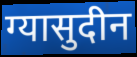
ग्यासुदीन